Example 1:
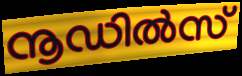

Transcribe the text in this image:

നൂഡിൽസ്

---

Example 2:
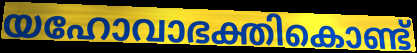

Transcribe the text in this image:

യഹോവാഭക്തികൊണ്ട്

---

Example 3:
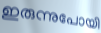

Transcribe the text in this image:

ഇരുന്നുപോയി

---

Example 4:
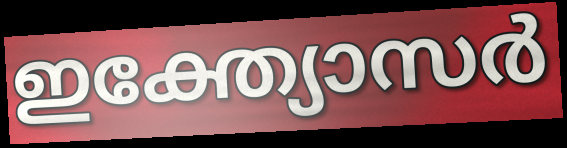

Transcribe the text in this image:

ഇക്ത്യോസർ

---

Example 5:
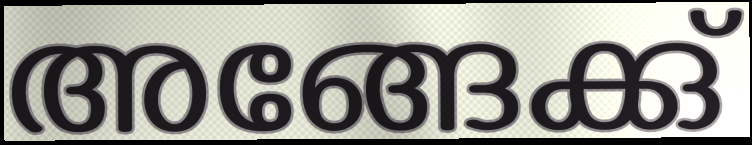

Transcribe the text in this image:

അങ്ങേക്കു്